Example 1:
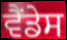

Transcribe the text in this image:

ਵੈਂਡੇਸ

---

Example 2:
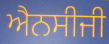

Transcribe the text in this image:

ਐਨਸੀਜੀ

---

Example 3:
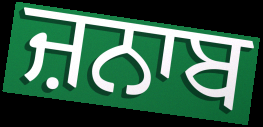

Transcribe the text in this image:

ਜ਼ਨਾਬ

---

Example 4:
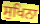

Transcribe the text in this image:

ਸੁਖਿਨਾ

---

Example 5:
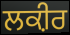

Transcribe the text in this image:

ਲਕ਼ੀਰ